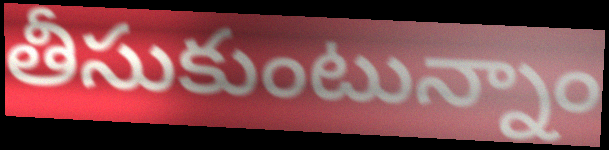
తీసుకుంటున్నాం